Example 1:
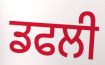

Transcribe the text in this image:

ਡਫਲੀ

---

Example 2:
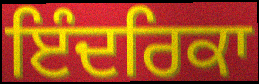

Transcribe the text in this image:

ਇੰਦਰਿਕਾ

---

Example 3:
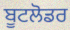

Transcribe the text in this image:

ਬੂਟਲੋਡਰ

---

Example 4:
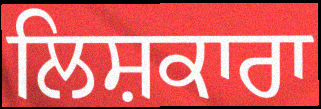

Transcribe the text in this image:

ਲਿਸ਼ਕਾਰਾ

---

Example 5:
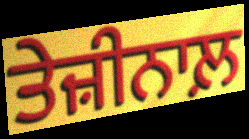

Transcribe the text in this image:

ਤੇਜ਼ੀਨਾਲ਼